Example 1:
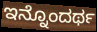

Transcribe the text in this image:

ಇನ್ನೊಂದರ್ಥ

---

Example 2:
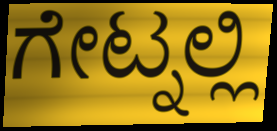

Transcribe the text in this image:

ಗೇಟ್ನಲ್ಲಿ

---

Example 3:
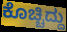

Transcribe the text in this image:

ಕೊಚ್ಚಿದ್ದು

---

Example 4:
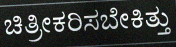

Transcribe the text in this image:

ಚಿತ್ರೀಕರಿಸಬೇಕಿತ್ತು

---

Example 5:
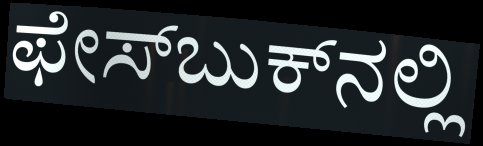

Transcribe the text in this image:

ಫೇಸ್‌ಬುಕ್‌ನಲ್ಲಿ